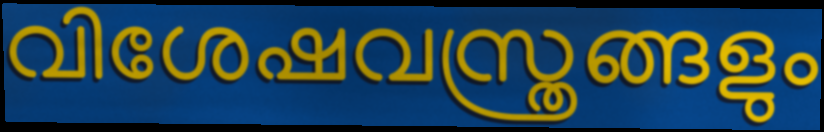
വിശേഷവസ്ത്രങ്ങളും